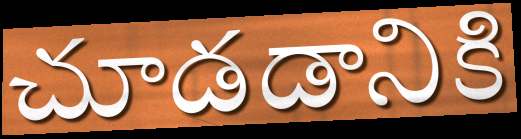
చూడడానికి